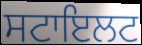
ਸਟਾਇਲਟ